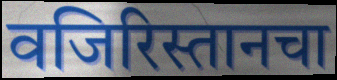
वजिरिस्तानचा